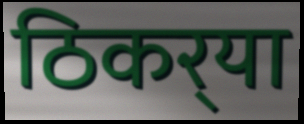
ठिकर्‍या